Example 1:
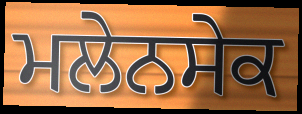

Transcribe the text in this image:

ਮਲੇਨਸੇਕ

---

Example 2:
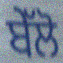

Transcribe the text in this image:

ਬੇੱਲੋ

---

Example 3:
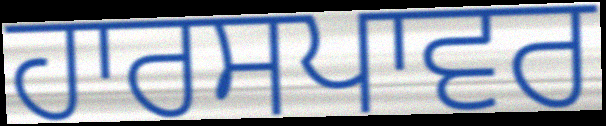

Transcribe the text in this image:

ਹਾਰਸਪਾਵਰ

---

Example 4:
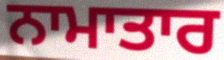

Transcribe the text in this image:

ਨਾਮਾਤਾਰ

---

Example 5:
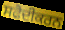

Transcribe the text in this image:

ਸਫੈਦੀਕਰਨ